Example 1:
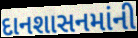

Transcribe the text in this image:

દાનશાસનમાંની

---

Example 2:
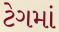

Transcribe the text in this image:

ટેગમાં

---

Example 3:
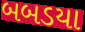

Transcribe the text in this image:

બબડયા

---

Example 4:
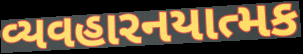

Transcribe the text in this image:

વ્યવહારનયાત્મક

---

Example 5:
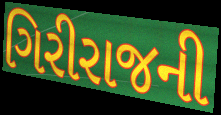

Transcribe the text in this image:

ગિરીરાજની